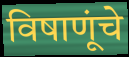
विषाणूंचे